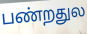
பண்றதுல